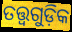
ତତ୍ତ୍ବଗୁଡ଼ିକ